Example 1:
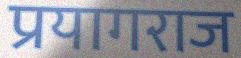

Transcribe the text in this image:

प्रयागराज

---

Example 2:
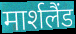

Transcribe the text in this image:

मार्शलैंड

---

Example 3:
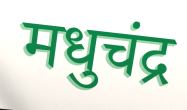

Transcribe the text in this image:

मधुचंद्र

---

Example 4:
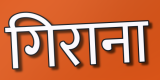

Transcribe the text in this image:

गिराना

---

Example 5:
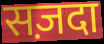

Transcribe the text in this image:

सज़दा